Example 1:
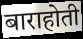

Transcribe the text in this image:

बाराहोती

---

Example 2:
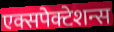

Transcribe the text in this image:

एक्सपेक्टेशन्स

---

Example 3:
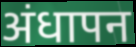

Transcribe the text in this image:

अंधापन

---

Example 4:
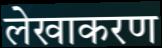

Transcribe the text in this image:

लेखाकरण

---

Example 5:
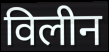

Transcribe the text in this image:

विलीन